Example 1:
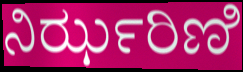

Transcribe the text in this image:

ನಿರ್ಝರಿಣಿ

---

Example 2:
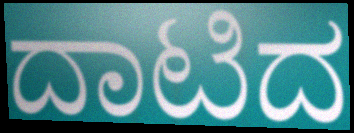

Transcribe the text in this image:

ದಾಟಿದ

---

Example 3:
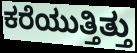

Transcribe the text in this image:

ಕರೆಯುತ್ತಿತ್ತು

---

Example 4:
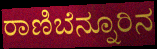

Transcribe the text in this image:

ರಾಣಿಬೆನ್ನೂರಿನ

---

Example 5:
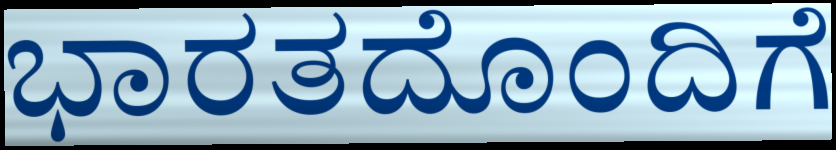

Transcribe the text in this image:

ಭಾರತದೊಂದಿಗೆ